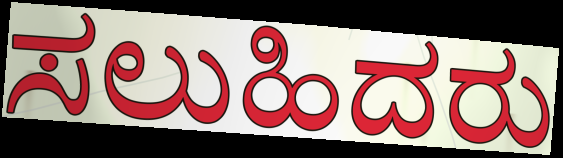
ಸಲುಹಿದರು